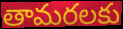
తామరలకు